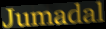
Jumadal